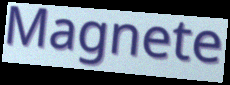
Magnete